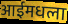
आईमधला